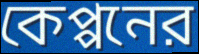
কেপ্পনের